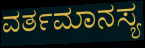
ವರ್ತಮಾನಸ್ಯ